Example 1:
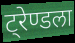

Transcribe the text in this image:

ट्रेण्डला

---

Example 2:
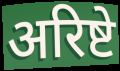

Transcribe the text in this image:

अरिष्टे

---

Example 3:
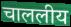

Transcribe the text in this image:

चाललीय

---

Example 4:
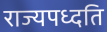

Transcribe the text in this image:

राज्यपध्दति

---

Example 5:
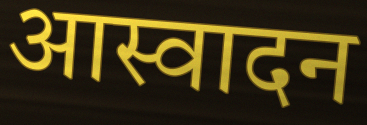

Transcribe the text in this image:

आस्वादन